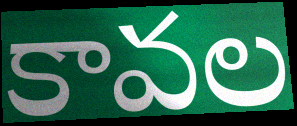
కావల